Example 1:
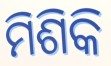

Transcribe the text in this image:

ମିଶିକି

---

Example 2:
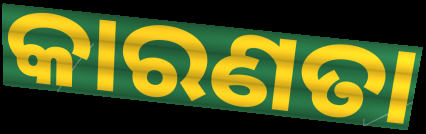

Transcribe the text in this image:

କାରଣତା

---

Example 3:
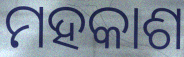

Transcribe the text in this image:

ମହକାଶ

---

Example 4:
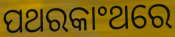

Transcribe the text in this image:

ପଥରକାଂଥରେ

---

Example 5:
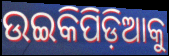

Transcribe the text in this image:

ଉଇକିପିଡ଼ିଆକୁ